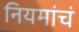
नियमांचं